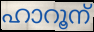
ഹാറൂന്